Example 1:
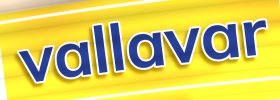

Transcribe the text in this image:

vallavar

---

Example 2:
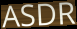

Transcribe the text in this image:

ASDR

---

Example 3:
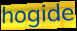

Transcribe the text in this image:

hogide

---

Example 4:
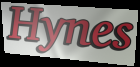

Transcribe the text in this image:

Hynes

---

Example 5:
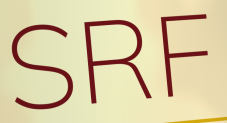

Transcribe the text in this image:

SRF